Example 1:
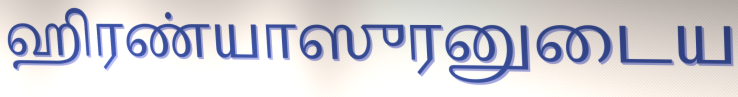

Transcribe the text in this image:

ஹிரண்யாஸுரனுடைய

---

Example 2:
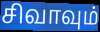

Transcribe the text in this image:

சிவாவும்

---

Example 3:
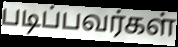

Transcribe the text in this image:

படிப்பவர்கள்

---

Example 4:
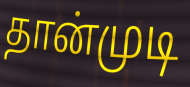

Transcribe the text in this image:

தான்முடி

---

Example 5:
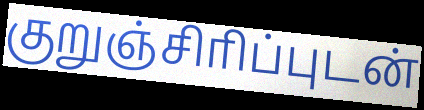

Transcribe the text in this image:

குறுஞ்சிரிப்புடன்